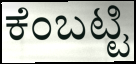
ಕೆಂಬಟ್ಟಿ